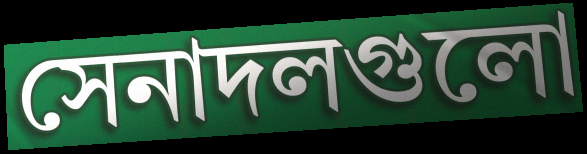
সেনাদলগুলো